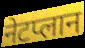
नेटप्लान